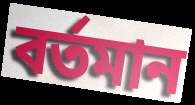
বর্তমান